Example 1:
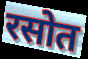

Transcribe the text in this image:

रसोत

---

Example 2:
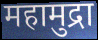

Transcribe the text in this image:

महामुद्रा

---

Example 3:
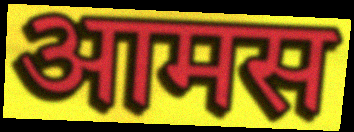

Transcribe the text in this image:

आमस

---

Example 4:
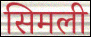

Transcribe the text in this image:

सिमली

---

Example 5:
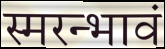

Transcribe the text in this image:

स्मरन्भावं